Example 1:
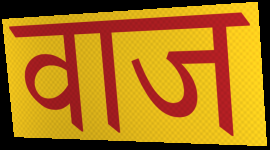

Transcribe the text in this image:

वाज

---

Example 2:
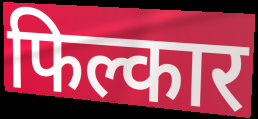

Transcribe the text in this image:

फिल्कार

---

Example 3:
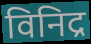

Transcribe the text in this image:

विनिद्र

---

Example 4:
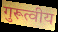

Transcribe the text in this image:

गुरूत्वीय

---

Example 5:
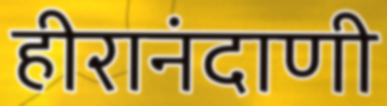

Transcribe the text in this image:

हीरानंदाणी